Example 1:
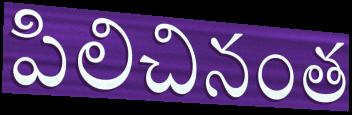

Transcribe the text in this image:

పిలిచినంత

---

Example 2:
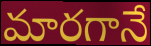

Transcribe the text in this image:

మారగానే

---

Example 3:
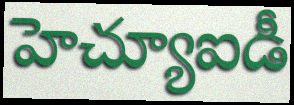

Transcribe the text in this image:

హెచ్యూఐడీ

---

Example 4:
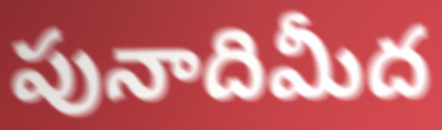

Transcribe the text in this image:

పునాదిమీద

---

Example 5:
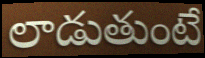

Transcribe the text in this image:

లాడుతుంటే